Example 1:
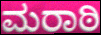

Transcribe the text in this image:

ಮರಾಠಿ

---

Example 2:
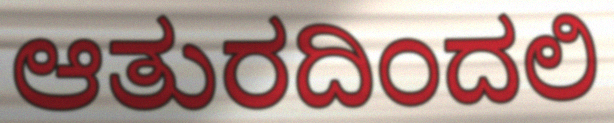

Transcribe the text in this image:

ಆತುರದಿಂದಲಿ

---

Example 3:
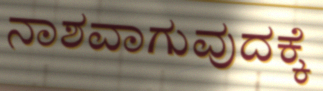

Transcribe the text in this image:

ನಾಶವಾಗುವುದಕ್ಕೆ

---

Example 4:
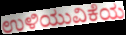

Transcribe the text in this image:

ಉಳಿಯುವಿಕೆಯ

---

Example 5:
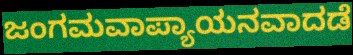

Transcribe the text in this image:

ಜಂಗಮವಾಪ್ಯಾಯನವಾದಡೆ